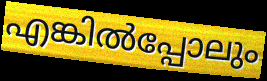
എങ്കിൽപ്പോലും